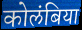
कोलंबिया